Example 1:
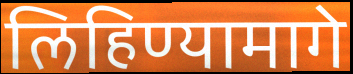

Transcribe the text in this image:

लिहिण्यामागे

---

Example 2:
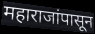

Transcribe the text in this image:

महाराजांपासून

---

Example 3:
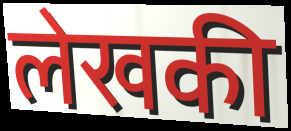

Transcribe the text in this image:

लेखकी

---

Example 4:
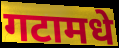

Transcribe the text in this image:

गटामधे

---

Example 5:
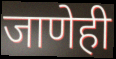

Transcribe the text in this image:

जाणेही